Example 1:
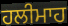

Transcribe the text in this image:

ਹਲੀਮਾਹ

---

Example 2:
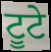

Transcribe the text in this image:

ਟੂਟੇ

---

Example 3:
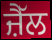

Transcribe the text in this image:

ਜ਼ੈੱਲ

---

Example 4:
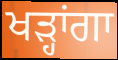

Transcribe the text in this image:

ਖੜ੍ਹਾਂਗਾ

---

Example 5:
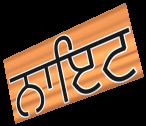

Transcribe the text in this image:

ਨਾਇਟ